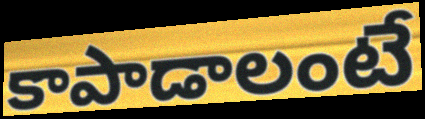
కాపాడాలంటే